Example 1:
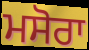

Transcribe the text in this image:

ਮਸੋਰਾ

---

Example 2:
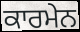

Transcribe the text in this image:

ਕਾਰਮੇਨ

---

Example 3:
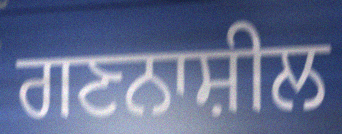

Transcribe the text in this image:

ਗਣਨਾਸ਼ੀਲ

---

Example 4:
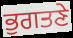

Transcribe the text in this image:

ਭੁਗਤਣੇ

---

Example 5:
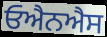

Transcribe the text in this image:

ਓਐਨਐਸ